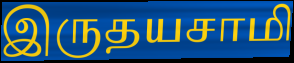
இருதயசாமி